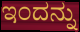
ಇಂದನ್ನು